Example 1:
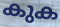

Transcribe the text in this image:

കുക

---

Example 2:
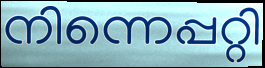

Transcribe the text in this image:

നിന്നെപ്പറ്റി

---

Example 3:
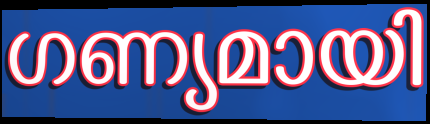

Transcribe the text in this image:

ഗണ്യമായി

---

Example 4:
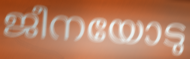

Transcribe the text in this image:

ജീനയോടു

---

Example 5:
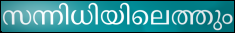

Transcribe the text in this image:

സന്നിധിയിലെത്തും